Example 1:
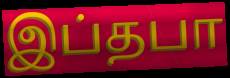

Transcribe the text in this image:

இப்தபா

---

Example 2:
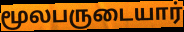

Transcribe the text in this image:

மூலபருடையார்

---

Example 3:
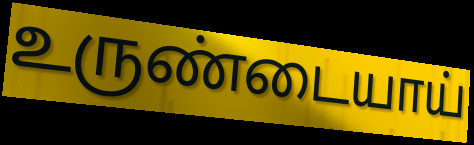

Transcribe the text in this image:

உருண்டையாய்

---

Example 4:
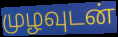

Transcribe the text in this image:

முழவுடன்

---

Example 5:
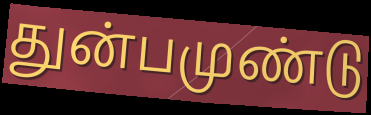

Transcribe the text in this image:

துன்பமுண்டு